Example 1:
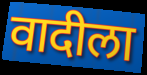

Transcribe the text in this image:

वादीला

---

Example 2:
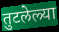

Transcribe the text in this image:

तुटलेल्या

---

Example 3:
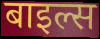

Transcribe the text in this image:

बाइल्स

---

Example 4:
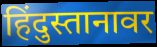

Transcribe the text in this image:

हिंदुस्तानावर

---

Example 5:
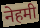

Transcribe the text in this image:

नेहमी